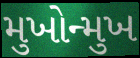
મુખોન્મુખ